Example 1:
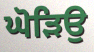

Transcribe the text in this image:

ਘੋੜਿਉ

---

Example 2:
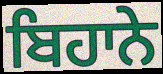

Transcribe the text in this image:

ਬਿਹਾਨੇ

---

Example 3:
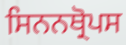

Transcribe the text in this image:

ਸਿਨਨਥ੍ਰੋਪਸ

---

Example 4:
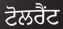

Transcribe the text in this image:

ਟੋਲਰੈਂਟ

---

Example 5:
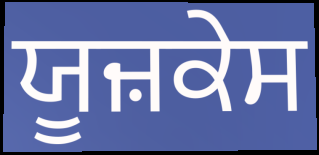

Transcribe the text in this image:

ਯੂਜ਼ਕੇਸ